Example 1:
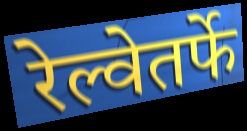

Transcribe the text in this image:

रेल्वेतर्फे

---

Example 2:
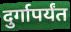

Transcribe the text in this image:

दुर्गापर्यंत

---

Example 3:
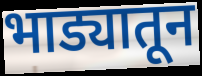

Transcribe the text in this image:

भाड्यातून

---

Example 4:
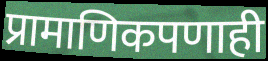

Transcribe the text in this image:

प्रामाणिकपणाही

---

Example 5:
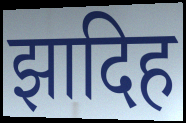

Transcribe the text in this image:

झादिह